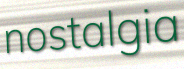
nostalgia